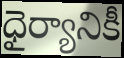
ధైర్యానికీ